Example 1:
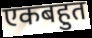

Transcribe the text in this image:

एकबहुत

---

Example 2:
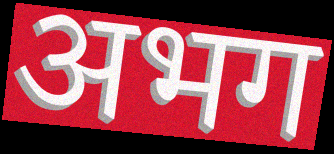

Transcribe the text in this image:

अभग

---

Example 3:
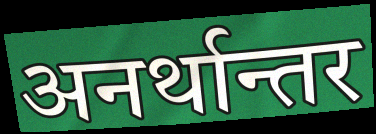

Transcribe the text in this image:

अनर्थान्तर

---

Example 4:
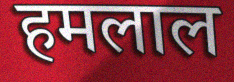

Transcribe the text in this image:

हमलाल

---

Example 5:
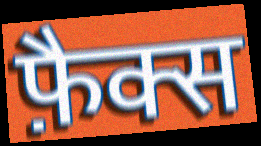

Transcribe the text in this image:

फ़ैक्स